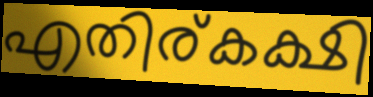
എതിര്കക്ഷി